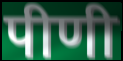
पीणी